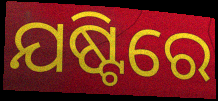
ଯଷ୍ଟିରେ